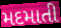
મદમાતી